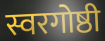
स्वरगोष्ठी